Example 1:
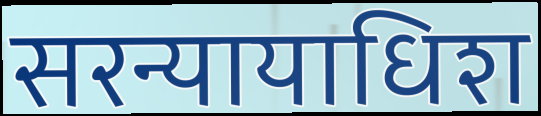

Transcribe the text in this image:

सरन्यायाधिश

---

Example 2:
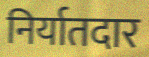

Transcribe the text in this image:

निर्यातदार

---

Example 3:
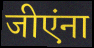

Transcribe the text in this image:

जीएंना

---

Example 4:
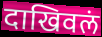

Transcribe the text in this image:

दाखिवलं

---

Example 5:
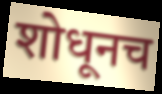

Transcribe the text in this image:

शोधूनच